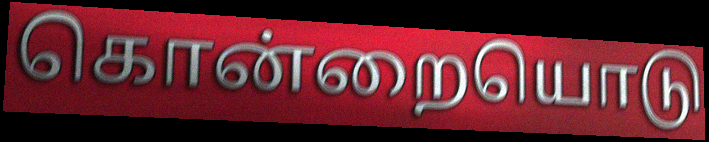
கொன்றையொடு